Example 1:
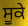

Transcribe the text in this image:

ਸੂਕੇ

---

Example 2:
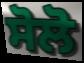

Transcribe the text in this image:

ਸੋਲੋ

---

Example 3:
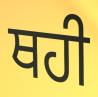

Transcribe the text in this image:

ਥਹੀ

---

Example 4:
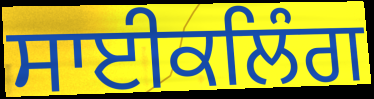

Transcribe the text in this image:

ਸਾਈਕਲਿੰਗ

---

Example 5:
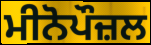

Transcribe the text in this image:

ਮੀਨੋਪੌਜ਼ਲ